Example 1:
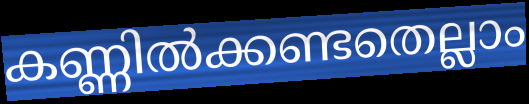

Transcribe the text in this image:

കണ്ണിൽക്കണ്ടതെല്ലാം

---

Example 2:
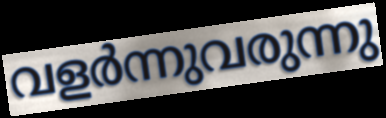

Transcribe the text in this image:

വളർന്നുവരുന്നു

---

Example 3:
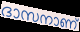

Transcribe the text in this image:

ദാസനാണ്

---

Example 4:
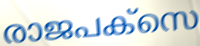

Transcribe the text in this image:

രാജപക്‌സെ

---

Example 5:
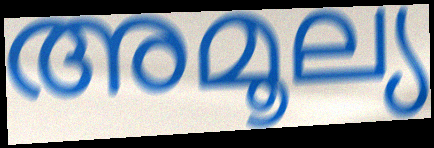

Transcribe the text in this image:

അമൂല്യ